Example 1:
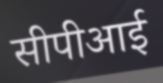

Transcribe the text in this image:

सीपीआई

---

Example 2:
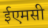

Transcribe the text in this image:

ईएमसी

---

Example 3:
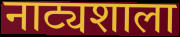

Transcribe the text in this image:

नाट्यशाला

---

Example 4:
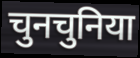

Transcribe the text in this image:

चुनचुनिया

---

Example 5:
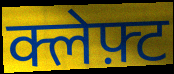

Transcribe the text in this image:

क्लेफ़्ट